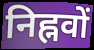
निह्नवों